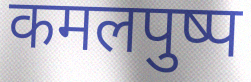
कमलपुष्प